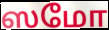
ஸமோ